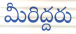
మీరిద్దరు